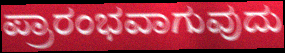
ಪ್ರಾರಂಭವಾಗುವುದು